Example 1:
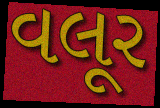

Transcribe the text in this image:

વલૂર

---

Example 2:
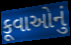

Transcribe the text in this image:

કૂવાઓનું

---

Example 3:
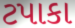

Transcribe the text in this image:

ટપાકા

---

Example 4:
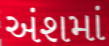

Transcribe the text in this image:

અંશમાં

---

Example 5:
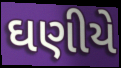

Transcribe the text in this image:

ઘણીયે